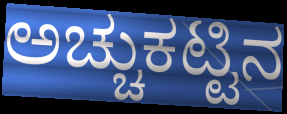
ಅಚ್ಚುಕಟ್ಟಿನ